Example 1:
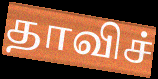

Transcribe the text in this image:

தாவிச்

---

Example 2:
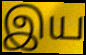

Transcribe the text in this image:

இய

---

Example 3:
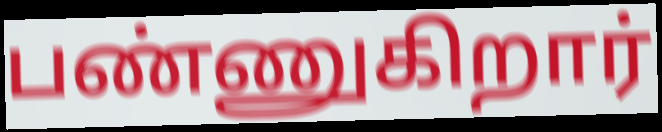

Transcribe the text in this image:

பண்ணுகிறார்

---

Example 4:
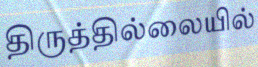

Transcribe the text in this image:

திருத்தில்லையில்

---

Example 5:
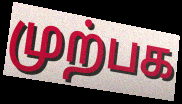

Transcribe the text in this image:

முற்பக